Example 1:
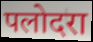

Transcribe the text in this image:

पलोदरा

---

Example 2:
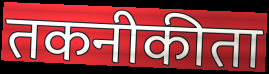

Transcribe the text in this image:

तकनीकीता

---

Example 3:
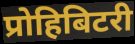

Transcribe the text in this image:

प्रोहिबिटरी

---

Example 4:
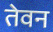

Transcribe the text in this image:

तेवन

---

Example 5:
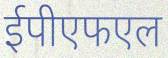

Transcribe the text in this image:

ईपीएफएल